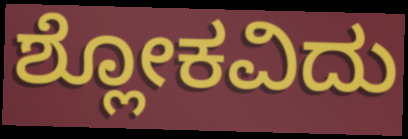
ಶ್ಲೋಕವಿದು